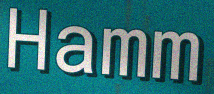
Hamm